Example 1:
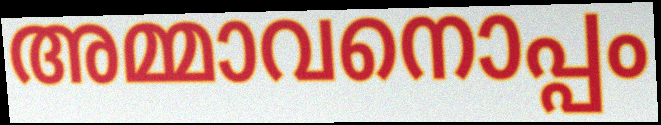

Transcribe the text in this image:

അമ്മാവനൊപ്പം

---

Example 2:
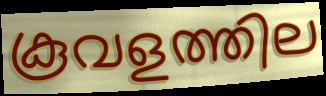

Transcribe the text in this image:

കൂവളത്തില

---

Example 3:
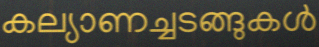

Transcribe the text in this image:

കല്യാണച്ചടങ്ങുകൾ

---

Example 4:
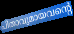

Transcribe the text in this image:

പിതാവുമായവന്റെ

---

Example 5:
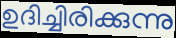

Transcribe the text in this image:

ഉദിച്ചിരിക്കുന്നു